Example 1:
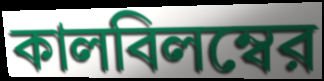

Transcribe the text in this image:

কালবিলম্বের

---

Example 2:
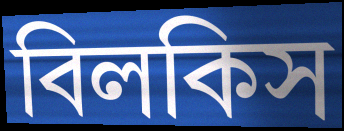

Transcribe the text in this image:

বিলকিস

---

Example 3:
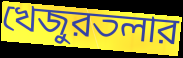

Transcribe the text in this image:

খেজুরতলার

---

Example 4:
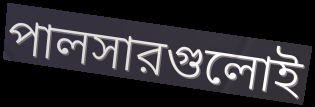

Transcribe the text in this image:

পালসারগুলোই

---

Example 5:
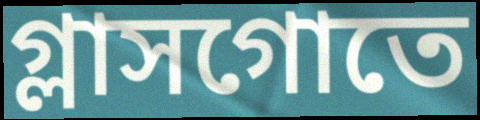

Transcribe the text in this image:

গ্লাসগোতে